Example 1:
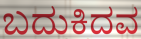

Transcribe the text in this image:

ಬದುಕಿದವ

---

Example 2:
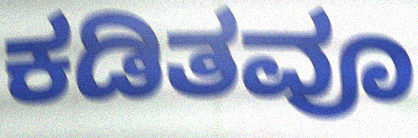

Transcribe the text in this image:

ಕಡಿತವೂ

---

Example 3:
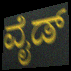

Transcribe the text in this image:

ವೈಡ್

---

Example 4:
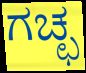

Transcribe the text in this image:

ಗಚ್ಛ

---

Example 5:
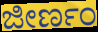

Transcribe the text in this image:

ಜೀರ್ಣಂ